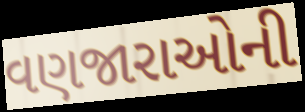
વણજારાઓની